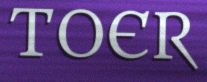
TOER